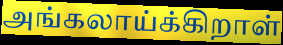
அங்கலாய்க்கிறாள்